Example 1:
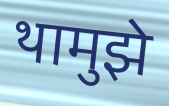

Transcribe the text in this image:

थामुझे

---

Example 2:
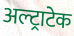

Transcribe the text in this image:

अल्‍ट्राटेक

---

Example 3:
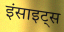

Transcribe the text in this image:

इंसाइट्स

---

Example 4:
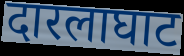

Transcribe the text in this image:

दारलाघाट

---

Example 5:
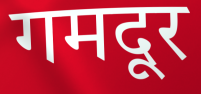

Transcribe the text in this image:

गमदूर